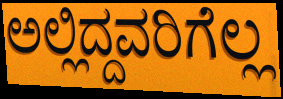
ಅಲ್ಲಿದ್ದವರಿಗೆಲ್ಲ